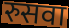
रुसवा